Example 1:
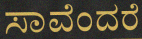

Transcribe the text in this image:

ಸಾವೆಂದರೆ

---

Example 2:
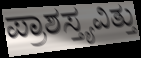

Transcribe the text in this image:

ಪ್ರಾಶಸ್ತ್ಯವಿತ್ತು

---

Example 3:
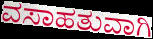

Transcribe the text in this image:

ವಸಾಹತುವಾಗಿ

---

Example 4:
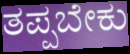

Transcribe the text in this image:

ತಪ್ಪಬೇಕು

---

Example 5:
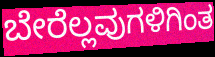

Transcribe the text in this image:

ಬೇರೆಲ್ಲವುಗಳಿಗಿಂತ